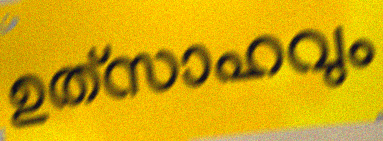
ഉത്‌സാഹവും